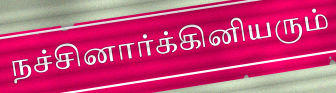
நச்சினார்க்கினியரும்